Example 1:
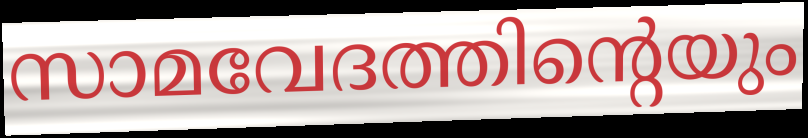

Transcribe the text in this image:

സാമവേദത്തിന്റെയും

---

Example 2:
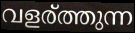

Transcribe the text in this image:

വളര്ത്തുന്ന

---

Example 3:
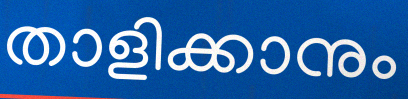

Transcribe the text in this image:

താളിക്കാനും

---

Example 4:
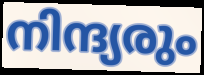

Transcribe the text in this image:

നിന്ദ്യരും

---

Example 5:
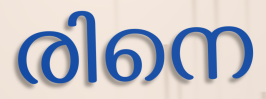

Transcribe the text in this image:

രിനെ